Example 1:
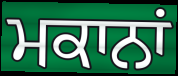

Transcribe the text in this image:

ਮਕਾਨਾਂ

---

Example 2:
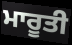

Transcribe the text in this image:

ਮਾਰੂਤੀ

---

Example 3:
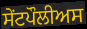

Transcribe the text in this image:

ਸੇਂਟਪੌਲੀਅਸ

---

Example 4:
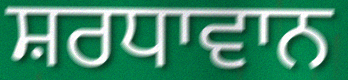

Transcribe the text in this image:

ਸ਼ਰਧਾਵਾਨ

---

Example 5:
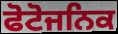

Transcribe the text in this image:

ਫੋਟੋਜਨਿਕ